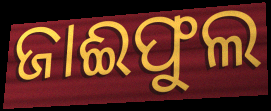
ଜାଈଫୁଲ